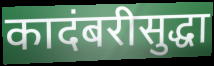
कादंबरीसुद्धा